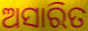
ଅସାରିତ